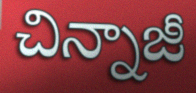
చిన్నాజీ